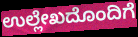
ಉಲ್ಲೇಖದೊಂದಿಗೆ